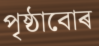
পৃষ্ঠাবোৰ